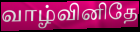
வாழ்வினிதே